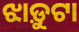
ଝାଡ଼ୁଟା